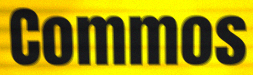
Commos